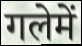
गलेमें